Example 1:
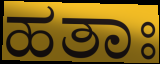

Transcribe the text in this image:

ಹತಾಃ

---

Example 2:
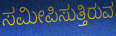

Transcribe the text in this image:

ಸಮೀಪಿಸುತ್ತಿರುವ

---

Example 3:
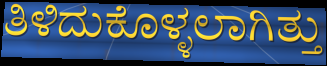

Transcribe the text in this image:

ತಿಳಿದುಕೊಳ್ಳಲಾಗಿತ್ತು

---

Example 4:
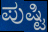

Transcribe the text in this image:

ಪುಷ್ಟಿ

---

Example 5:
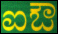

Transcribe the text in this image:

ಐಔ